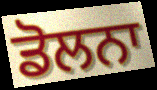
ਡੋਲਨਾ